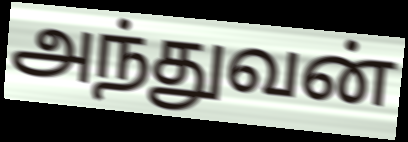
அந்துவன்